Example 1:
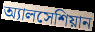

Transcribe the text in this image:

অ্যালসেশিয়ান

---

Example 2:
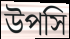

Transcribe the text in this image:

উপসি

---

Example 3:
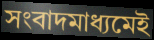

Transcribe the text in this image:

সংবাদমাধ্যমেই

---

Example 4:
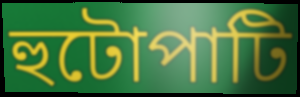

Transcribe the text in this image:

হুটোপাটি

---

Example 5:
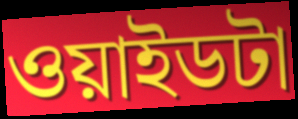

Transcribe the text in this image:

ওয়াইডটা